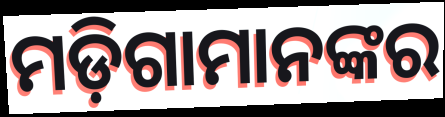
ମଡ଼ିଗାମାନଙ୍କର